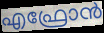
എഫ്രോൻ